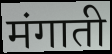
मंगाती